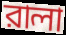
রালা